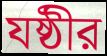
যষ্ঠীর